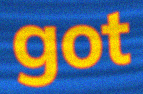
got